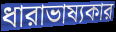
ধারাভাষ্যকার